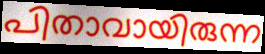
പിതാവായിരുന്ന